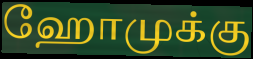
ஹோமுக்கு